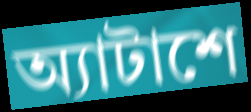
অ্যাটাশে